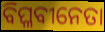
ବିପ୍ଳବୀନେତା